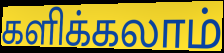
களிக்கலாம்